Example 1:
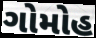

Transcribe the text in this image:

ગોમોહ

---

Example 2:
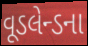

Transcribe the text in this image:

વૂડલેન્ડના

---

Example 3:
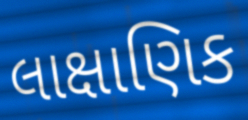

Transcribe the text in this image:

લાક્ષાણિક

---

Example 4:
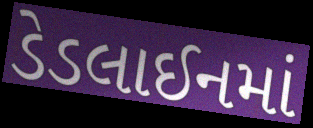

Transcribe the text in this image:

ડેડલાઈનમાં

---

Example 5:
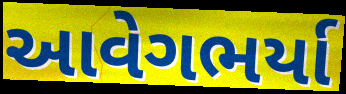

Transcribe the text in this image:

આવેગભર્યા